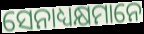
ସେନାଧ୍ୟକ୍ଷମାନେ